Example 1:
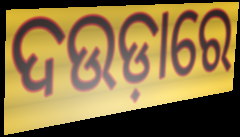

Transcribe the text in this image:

ଦଉଡ଼ାରେ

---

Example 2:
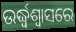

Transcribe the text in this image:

ଉର୍ଦ୍ଧ୍ଵଶ୍ୱାସରେ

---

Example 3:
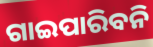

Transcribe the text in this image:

ଗାଇପାରିବନି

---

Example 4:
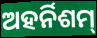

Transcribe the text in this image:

ଅହର୍ନିଶମ୍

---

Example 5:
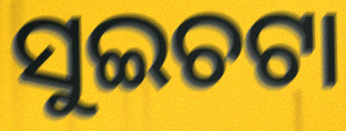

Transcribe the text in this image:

ସୁଇଚଟା